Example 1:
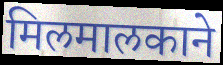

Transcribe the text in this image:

मिलमालकाने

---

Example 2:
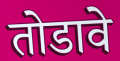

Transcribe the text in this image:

तोडावे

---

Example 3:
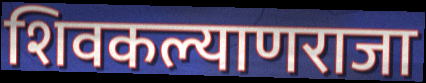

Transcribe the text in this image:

शिवकल्याणराजा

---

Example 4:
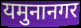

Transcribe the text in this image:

यमुनानगर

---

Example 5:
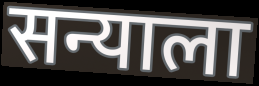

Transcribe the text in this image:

सन्याला